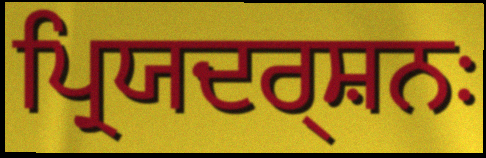
ਪ੍ਰਿਯਦਰ੍ਸ਼ਨਃ